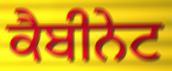
ਕੈਬੀਨੇਟ